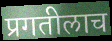
प्रगतीलाच